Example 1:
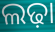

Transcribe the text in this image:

ଲଢ଼ା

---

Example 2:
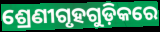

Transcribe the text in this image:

ଶ୍ରେଣୀଗୃହଗୁଡ଼ିକରେ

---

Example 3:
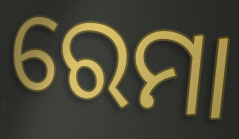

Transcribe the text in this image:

ରେମା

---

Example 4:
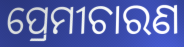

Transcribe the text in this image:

ପ୍ରେମୀଚାରଣ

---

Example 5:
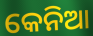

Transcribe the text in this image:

କେନିଆ